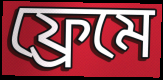
ফ্রেমে